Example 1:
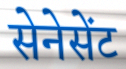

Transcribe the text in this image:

सेनेसेंट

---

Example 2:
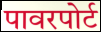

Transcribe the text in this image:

पावरपोर्ट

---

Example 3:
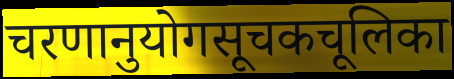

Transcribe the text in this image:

चरणानुयोगसूचकचूलिका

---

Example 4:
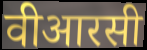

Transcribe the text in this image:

वीआरसी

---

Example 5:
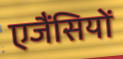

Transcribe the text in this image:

एजैंसियों